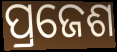
ପ୍ରଜେଶ